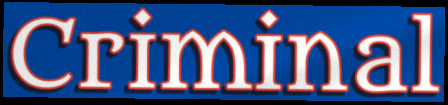
Criminal